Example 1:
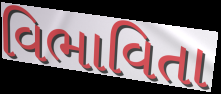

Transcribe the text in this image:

વિભાવિતા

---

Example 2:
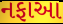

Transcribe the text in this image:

નફાઆ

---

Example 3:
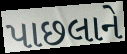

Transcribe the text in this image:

પાછલાને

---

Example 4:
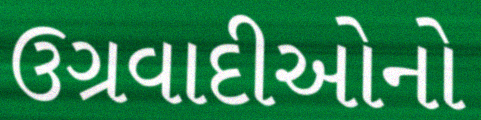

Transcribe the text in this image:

ઉગ્રવાદીઓનો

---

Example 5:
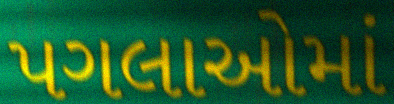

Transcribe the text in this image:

પગલાઓમાં